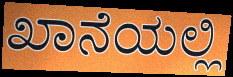
ಖಾನೆಯಲ್ಲಿ